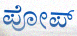
ಪೋಪ್